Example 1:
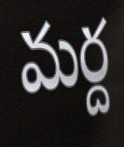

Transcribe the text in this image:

మర్ద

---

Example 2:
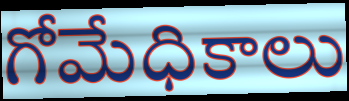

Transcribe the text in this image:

గోమేధికాలు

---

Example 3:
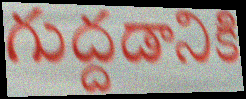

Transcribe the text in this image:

గుద్దడానికి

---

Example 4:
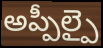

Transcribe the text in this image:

అప్పీల్పై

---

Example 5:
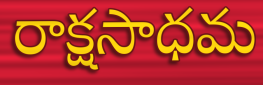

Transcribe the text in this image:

రాక్షసాధమ